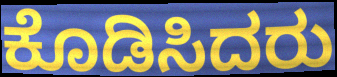
ಕೊಡಿಸಿದರು